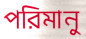
পরিমানু